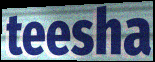
teesha